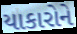
યાકારોને